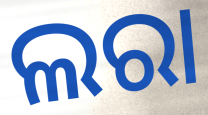
ଲରା